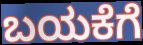
ಬಯಕೆಗೆ